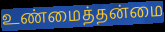
உண்மைத்தன்மை